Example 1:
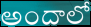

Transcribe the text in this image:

అందాలో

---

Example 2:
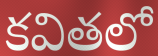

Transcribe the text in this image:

కవితలో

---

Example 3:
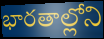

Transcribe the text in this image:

భారతాల్లోని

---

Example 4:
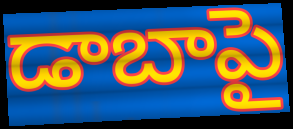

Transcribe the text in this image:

డాబాపై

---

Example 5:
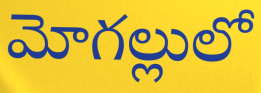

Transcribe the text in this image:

మోగల్లులో